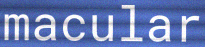
macular